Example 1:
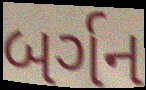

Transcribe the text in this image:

બર્ગન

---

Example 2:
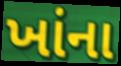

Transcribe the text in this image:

ખાંના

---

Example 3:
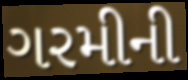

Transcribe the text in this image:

ગરમીની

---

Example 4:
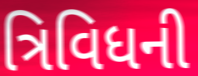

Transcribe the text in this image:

ત્રિવિધની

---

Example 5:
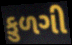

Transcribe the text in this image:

કુળગી